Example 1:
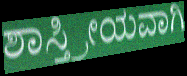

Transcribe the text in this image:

ಶಾಸ್ತ್ರೀಯವಾಗಿ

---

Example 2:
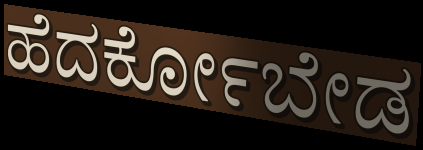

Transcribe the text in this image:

ಹೆದರ್ಕೋಬೇಡ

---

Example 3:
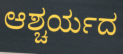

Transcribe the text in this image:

ಆಶ್ಚರ್ಯದ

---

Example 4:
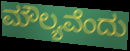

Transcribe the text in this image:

ಮೌಲ್ಯವೆಂದು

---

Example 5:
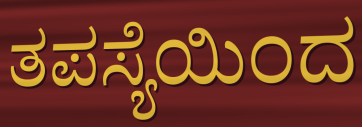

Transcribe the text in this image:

ತಪಸ್ಯೆಯಿಂದ